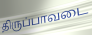
திருப்பாவடை